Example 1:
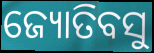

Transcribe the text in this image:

ଜ୍ୟୋତିବସୁ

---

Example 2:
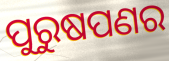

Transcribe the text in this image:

ପୁରୁଷପଣର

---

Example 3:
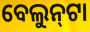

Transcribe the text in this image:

ବେଲୁନ୍‌ଟା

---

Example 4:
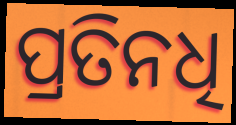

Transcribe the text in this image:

ପ୍ରତିନଧି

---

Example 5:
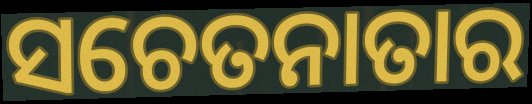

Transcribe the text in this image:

ସଚେତନାତାର